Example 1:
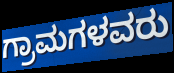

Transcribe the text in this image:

ಗ್ರಾಮಗಳವರು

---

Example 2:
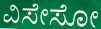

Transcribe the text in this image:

ವಿಸೇಸೋ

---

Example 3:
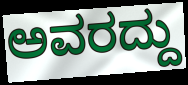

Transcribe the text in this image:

ಅವರದ್ದು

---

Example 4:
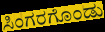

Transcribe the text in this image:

ಸಿಂಗರಗೊಂಡು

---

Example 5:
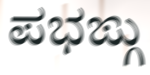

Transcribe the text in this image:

ಪಭಙ್ಗು